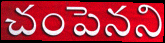
చంపెనని